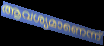
ആവശ്യമാണെന്ന്